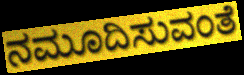
ನಮೂದಿಸುವಂತೆ